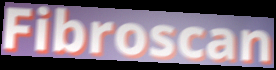
Fibroscan